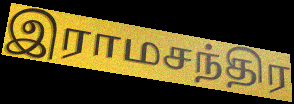
இராமசந்திர